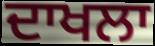
ਦਾਖਲਾ